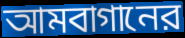
আমবাগানের